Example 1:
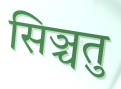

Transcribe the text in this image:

सिञ्चतु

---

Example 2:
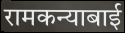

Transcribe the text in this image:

रामकन्याबाई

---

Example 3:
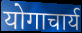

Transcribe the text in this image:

योगाचार्य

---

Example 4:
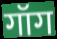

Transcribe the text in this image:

गॉग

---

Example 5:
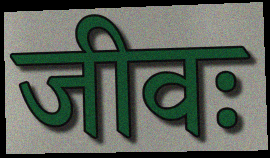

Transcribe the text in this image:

जीवः